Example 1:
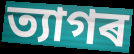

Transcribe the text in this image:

ত্যাগৰ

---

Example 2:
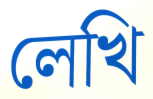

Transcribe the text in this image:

লেখি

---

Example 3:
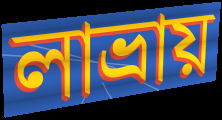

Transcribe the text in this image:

লাভ্ৰায়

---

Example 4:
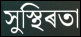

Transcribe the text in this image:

সুস্থিৰতা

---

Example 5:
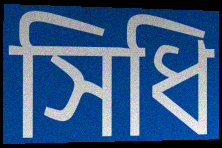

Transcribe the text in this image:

সিধি